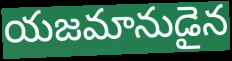
యజమానుడైన